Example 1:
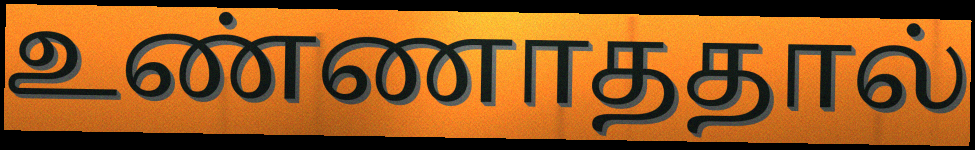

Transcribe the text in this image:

உண்ணாததால்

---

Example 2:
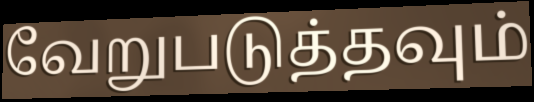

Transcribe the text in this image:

வேறுபடுத்தவும்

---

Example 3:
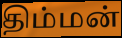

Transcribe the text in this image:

திம்மன்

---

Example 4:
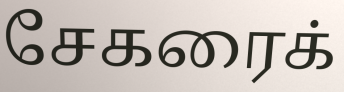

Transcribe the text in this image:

சேகரைக்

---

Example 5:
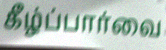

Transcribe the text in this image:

கீழ்ப்பார்வை